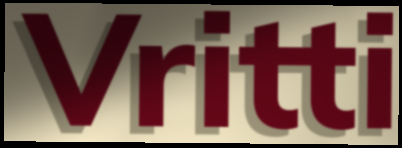
Vritti